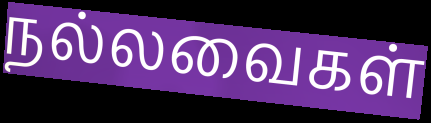
நல்லவைகள்